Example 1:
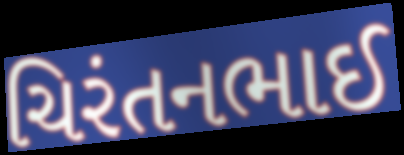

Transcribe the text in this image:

ચિરંતનભાઈ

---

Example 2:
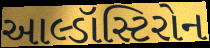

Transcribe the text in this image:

આલ્ડૉસ્ટિરોન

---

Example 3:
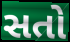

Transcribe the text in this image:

સતો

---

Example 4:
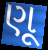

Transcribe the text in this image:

ણૂ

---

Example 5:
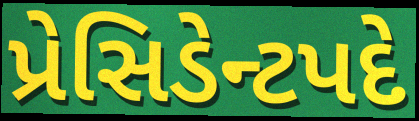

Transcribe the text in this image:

પ્રેસિડેન્ટપદે